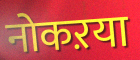
नोकऱया